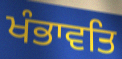
ਖੰਭਾਵਤਿ